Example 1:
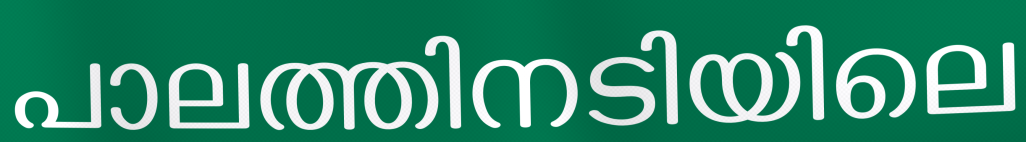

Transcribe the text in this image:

പാലത്തിനടിയിലെ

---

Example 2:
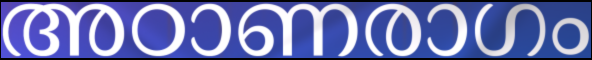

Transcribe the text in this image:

അഠാണരാഗം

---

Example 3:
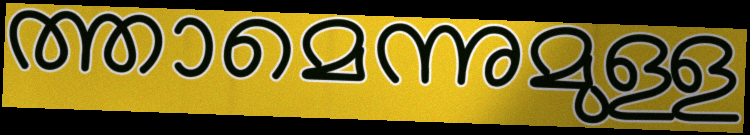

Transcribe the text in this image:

ത്താമെന്നുമുള്ള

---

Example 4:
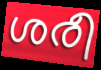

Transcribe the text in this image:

ശരീ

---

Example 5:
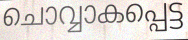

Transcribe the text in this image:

ചൊവ്വാകപ്പെട്ട